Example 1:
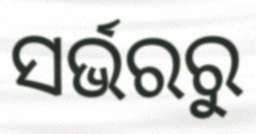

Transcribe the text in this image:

ସର୍ଭରରୁ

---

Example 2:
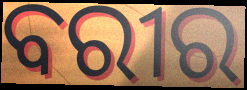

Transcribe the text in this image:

ବରୀର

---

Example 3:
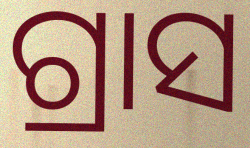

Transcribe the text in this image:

ଗ୍ରାସ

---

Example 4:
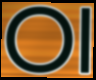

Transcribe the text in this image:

ଠା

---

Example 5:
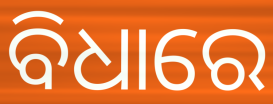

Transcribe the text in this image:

ବିଧାରେ